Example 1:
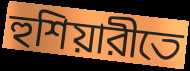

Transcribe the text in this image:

হুশিয়ারীতে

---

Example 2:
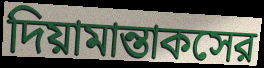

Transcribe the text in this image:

দিয়ামান্তাকসের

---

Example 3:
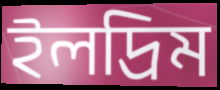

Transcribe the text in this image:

ইলদ্রিম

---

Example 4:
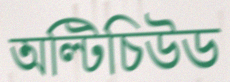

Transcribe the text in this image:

অল্টিচিউড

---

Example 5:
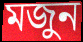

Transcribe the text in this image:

মজুন